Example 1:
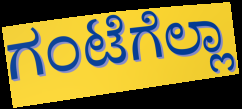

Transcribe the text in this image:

ಗಂಟೆಗೆಲ್ಲಾ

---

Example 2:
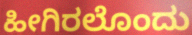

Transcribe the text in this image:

ಹೀಗಿರಲೊಂದು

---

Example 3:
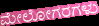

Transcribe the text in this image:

ಮೇಲೋಗರಗಳು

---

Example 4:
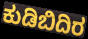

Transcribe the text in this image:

ಕುಡಿಬಿದಿರ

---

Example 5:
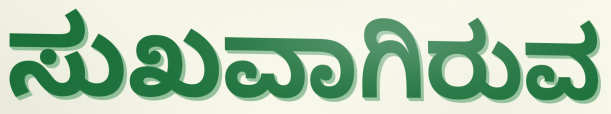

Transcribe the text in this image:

ಸುಖವಾಗಿರುವ